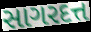
સાગરદત્ત